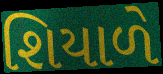
શિયાળે